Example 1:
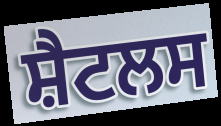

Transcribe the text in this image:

ਸ਼ੈਟਲਸ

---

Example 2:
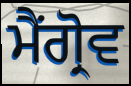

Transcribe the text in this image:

ਮੈਂਗ੍ਰੋਵ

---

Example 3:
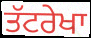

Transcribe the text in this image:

ਤੱਟਰੇਖਾ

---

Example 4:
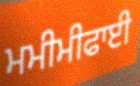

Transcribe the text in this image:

ਮਮੀਮੀਫਾਈ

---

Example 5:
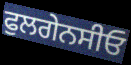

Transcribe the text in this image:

ਫੁਲਗੇਨਸੀਓ